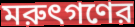
মরুৎগণের